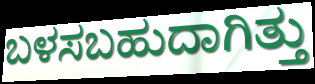
ಬಳಸಬಹುದಾಗಿತ್ತು